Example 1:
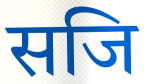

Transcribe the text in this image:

सजि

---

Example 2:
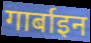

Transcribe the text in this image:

गार्बाइन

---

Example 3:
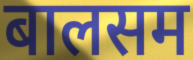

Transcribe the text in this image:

बालसम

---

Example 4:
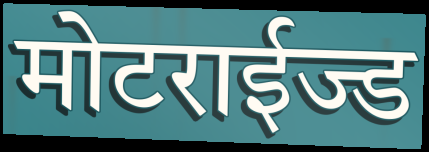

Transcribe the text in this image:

मोटराईज्ड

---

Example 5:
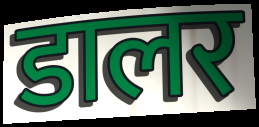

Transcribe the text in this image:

डालर